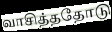
வாசித்ததோடு